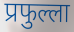
प्रफुल्ला